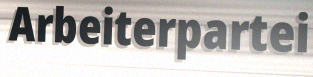
Arbeiterpartei